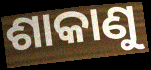
ଶାକାଣୁ